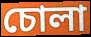
চোলা